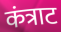
कंत्राट